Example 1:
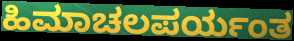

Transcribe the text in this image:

ಹಿಮಾಚಲಪರ್ಯಂತ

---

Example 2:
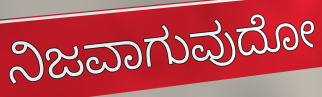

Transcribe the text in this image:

ನಿಜವಾಗುವುದೋ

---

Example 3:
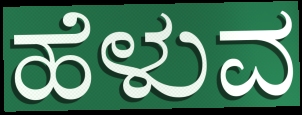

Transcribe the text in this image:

ಹೆಳುವ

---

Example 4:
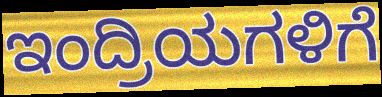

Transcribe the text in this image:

ಇಂದ್ರಿಯಗಳಿಗೆ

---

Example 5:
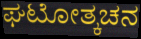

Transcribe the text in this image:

ಘಟೋತ್ಕಚನ